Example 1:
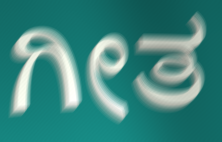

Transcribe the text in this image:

ಗೀತ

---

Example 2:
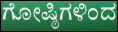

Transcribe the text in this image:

ಗೋಷ್ಠಿಗಳಿಂದ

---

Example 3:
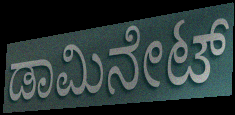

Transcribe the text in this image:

ಡಾಮಿನೇಟ್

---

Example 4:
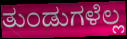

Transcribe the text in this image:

ತುಂಡುಗಳೆಲ್ಲ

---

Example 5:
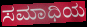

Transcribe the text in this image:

ಸಮಾಧಿಯ